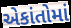
એકાંતોમાં